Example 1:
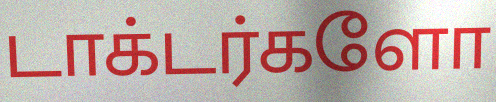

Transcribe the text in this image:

டாக்டர்களோ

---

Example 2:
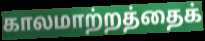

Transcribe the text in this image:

காலமாற்றத்தைக்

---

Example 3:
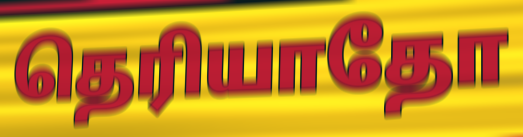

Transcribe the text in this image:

தெரியாதோ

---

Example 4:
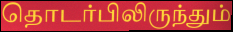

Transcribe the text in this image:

தொடர்பிலிருந்தும்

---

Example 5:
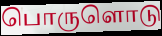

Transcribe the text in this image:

பொருளொடு